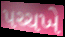
પચ્ચખે